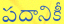
పదానికీ